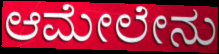
ಆಮೇಲೇನು